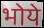
भोये